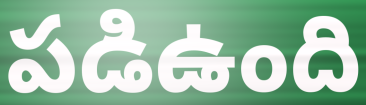
పడిఉంది